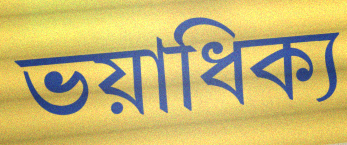
ভয়াধিক্য